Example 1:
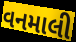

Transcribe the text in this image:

વનમાલી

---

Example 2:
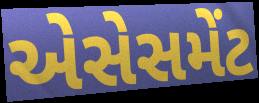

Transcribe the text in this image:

એસેસમેંટ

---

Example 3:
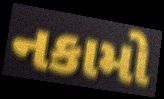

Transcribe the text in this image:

નકામો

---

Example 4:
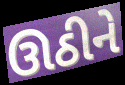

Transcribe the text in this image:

ઊઠીને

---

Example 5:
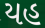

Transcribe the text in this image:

યહ